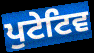
ਪੁਟੇਟਿਵ